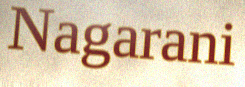
Nagarani